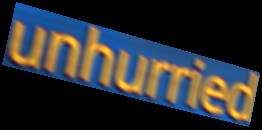
unhurried